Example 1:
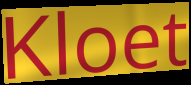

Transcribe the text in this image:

Kloet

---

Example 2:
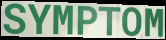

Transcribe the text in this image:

SYMPTOM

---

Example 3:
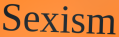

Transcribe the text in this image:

Sexism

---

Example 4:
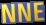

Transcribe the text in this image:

NNE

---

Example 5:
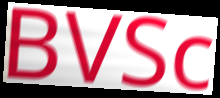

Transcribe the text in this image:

BVSc